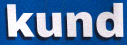
kund